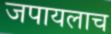
जपायलाच